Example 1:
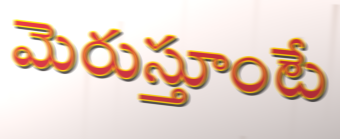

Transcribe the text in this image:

మెరుస్తూంటే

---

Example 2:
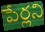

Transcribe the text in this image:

పేర్లని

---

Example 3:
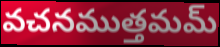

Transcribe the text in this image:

వచనముత్తమమ్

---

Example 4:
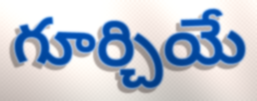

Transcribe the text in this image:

గూర్చియే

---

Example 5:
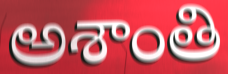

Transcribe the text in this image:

అశాంతి